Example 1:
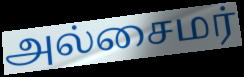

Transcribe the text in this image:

அல்சைமர்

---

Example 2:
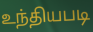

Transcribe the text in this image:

உந்தியபடி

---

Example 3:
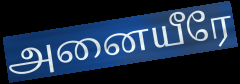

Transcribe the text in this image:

அனையீரே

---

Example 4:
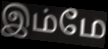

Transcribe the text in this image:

இம்மே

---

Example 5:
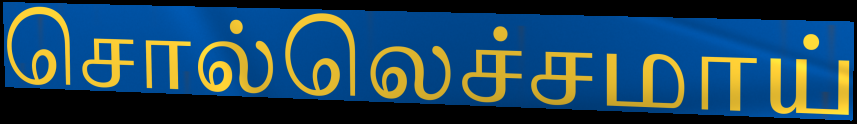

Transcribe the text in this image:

சொல்லெச்சமாய்